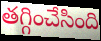
తగ్గించేసింది